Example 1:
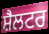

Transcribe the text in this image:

ਸ਼ੈਲਟਰ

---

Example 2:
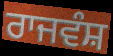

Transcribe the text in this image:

ਰਾਜਵੰਸ਼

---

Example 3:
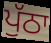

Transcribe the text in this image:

ਪੁੱਠਾ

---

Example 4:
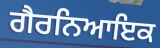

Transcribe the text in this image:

ਗੈਰਨਿਆਇਕ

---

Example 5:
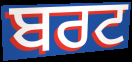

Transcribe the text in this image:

ਬਰਟ